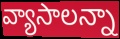
వ్యాసాలన్నా